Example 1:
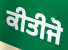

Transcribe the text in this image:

ਕੀਤੀਜੋ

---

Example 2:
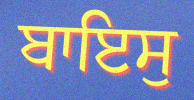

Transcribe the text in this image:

ਬਾਇਸੁ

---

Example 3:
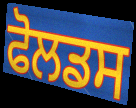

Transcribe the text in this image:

ਫੋਲਡਸ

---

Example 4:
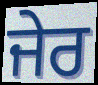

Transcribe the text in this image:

ਜੇਰ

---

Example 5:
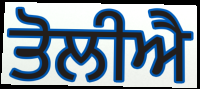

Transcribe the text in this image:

ਤੋਲੀਐ